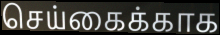
செய்கைக்காக